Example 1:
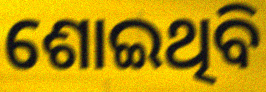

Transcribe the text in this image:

ଶୋଇଥିବି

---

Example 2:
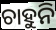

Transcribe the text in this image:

ଚାହୁନି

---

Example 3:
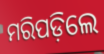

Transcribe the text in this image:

ମରିପଡ଼ିଲେ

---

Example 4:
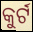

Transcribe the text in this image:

କୁର୍ଟ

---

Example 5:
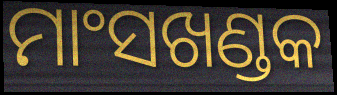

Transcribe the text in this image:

ମାଂସଖଣ୍ଡକ